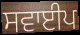
ਸਵਾਈਪ